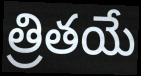
త్రితయే